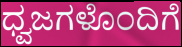
ಧ್ವಜಗಳೊಂದಿಗೆ